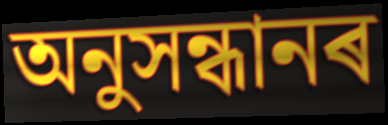
অনুসন্ধানৰ